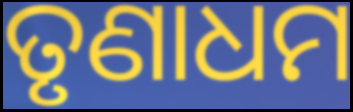
ତୃଣାଧମ